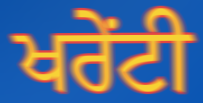
ਖਰੇਂਟੀ